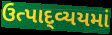
ઉત્પાદ્વ્યયમાં